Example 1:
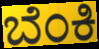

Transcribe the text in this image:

ಬೆಂಕಿ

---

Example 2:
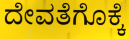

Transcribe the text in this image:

ದೇವತೆಗೊಕ್ಕೆ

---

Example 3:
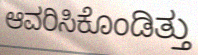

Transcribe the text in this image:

ಆವರಿಸಿಕೊಂಡಿತ್ತು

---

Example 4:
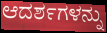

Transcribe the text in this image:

ಆದರ್ಶಗಳನ್ನು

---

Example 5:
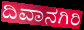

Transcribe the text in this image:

ದಿವಾನಗಿರಿ